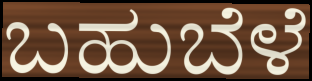
ಬಹುಬೆಳೆ